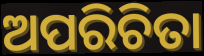
ଅପରିଚିତା